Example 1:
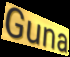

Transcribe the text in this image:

Guna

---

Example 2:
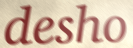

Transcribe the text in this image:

desho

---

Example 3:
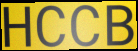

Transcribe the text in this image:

HCCB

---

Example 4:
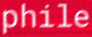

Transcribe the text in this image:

phile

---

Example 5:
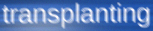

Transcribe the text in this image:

transplanting